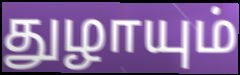
துழாயும்